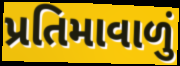
પ્રતિમાવાળું